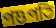
পশুপতি